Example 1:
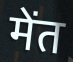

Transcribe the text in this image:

मेंत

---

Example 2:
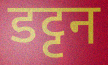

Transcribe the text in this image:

डट्टन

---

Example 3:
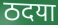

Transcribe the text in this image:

ठदया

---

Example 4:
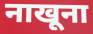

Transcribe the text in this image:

नाखूना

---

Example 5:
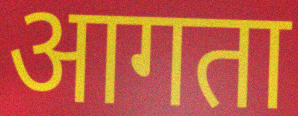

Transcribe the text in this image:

आगता